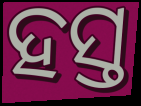
ହସ୍ତ